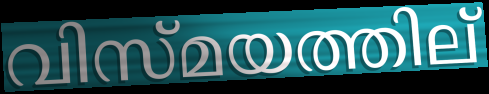
വിസ്മയത്തില്